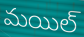
మయిల్